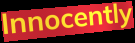
Innocently